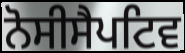
ਨੋਸੀਸੈਪਟਿਵ